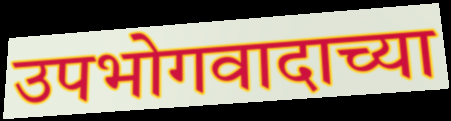
उपभोगवादाच्या